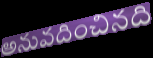
అనువదించినది